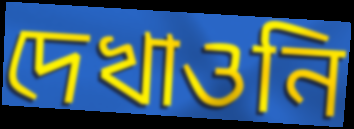
দেখাওনি